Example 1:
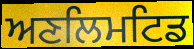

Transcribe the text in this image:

ਅਣਲਿਮਟਿਡ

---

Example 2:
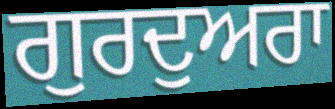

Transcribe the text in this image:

ਗੁਰਦੁਅਰਾ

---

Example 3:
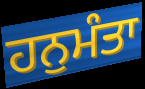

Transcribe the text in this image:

ਹਨੁਮੰਤਾ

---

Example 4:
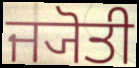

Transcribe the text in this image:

ਜ੍ਯੋਤੀ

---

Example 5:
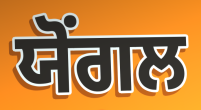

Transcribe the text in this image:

ਯੋਂਗਲ